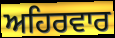
ਅਹਿਰਵਾਰ